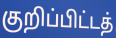
குறிப்பிட்டத்